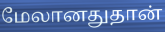
மேலானதுதான்